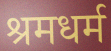
श्रमधर्म